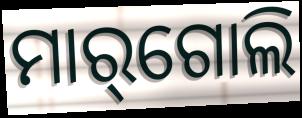
ମାର୍‌ଗୋଲି